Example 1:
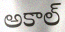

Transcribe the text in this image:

అకాల్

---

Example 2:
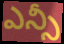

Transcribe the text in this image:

ఎన్సీ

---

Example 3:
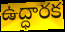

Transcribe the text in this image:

ఉద్ధారక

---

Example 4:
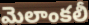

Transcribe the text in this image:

మెలాంకలీ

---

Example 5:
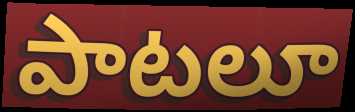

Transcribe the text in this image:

పాటలూ